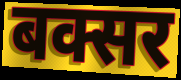
बक्सर